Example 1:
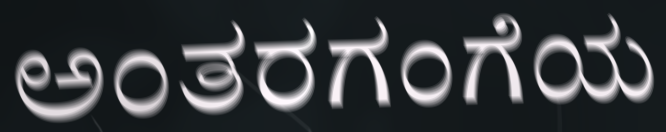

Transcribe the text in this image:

ಅಂತರಗಂಗೆಯ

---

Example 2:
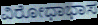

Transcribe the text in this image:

ವಿರೋಧಾಭಾಸ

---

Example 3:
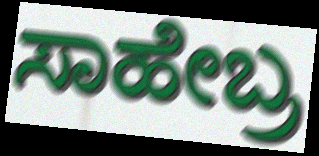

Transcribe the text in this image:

ಸಾಹೇಬ್ರ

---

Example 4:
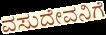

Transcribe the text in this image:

ವಸುದೇವನಿಗೆ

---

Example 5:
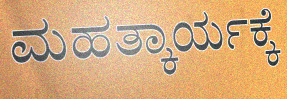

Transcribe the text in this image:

ಮಹತ್ಕಾರ್ಯಕ್ಕೆ